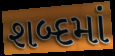
શબ્દમાં